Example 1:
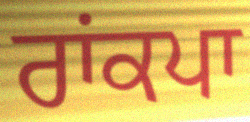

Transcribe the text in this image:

ਰਾਂਕਪਾ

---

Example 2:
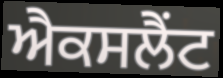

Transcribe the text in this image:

ਐਕਸਲੈਂਟ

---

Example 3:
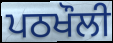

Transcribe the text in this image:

ਪਠਖੌਲੀ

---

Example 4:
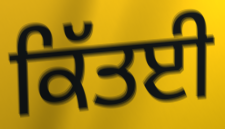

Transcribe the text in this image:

ਕਿੱਤਈ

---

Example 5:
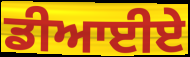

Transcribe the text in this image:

ਡੀਆਈਏ